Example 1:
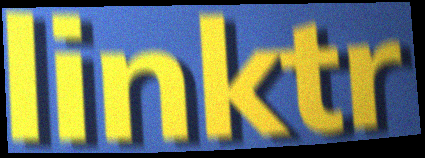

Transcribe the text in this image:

linktr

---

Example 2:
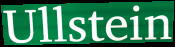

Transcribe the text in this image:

Ullstein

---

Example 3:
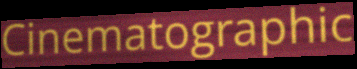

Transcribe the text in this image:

Cinematographic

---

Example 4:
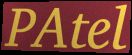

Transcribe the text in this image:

PAtel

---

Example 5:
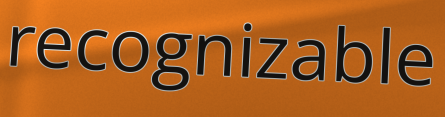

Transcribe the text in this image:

recognizable